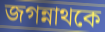
জগন্নাথকে